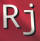
Rj